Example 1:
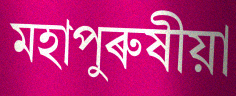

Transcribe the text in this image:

মহাপুৰুষীয়া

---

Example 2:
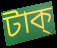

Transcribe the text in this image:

টাক্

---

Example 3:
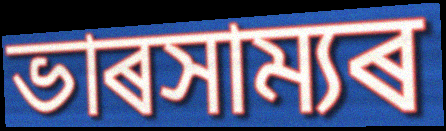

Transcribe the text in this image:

ভাৰসাম্যৰ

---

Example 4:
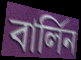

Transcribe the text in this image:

বাৰ্লিন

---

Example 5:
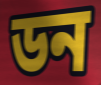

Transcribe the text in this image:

ডন